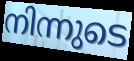
നിന്നുടെ